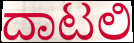
ದಾಟಲಿ